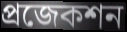
প্রজেকশন